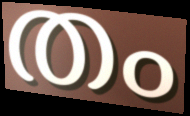
തം